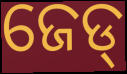
ଜେଡ୍